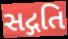
સદ્ગતિ